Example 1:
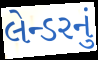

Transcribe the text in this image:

લેન્ડરનું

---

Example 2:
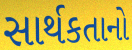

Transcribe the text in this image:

સાર્થકતાનો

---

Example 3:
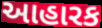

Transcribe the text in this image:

આહારક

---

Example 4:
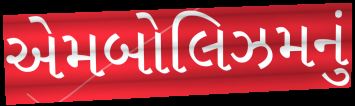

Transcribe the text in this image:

એમબોલિઝમનું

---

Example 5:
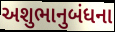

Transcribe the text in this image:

અશુભાનુબંધના